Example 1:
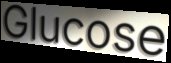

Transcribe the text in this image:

Glucose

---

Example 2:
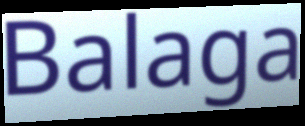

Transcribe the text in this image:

Balaga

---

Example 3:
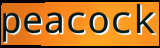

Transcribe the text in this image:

peacock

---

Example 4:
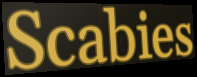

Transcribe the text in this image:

Scabies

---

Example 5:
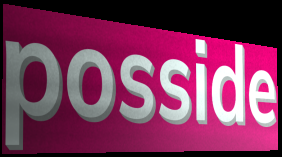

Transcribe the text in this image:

posside